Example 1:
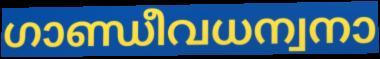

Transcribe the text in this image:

ഗാണ്ഡീവധന്വനാ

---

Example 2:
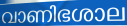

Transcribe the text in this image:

വാണിഭശാല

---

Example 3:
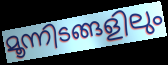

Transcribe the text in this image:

മൂന്നിടങ്ങളിലും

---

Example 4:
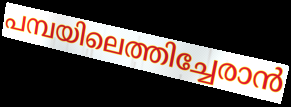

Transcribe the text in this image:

പമ്പയിലെത്തിച്ചേരാൻ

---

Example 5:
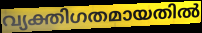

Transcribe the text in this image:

വ്യക്തിഗതമായതിൽ